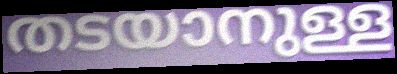
തടയാനുള്ള